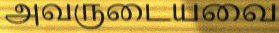
அவருடையவை